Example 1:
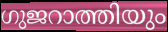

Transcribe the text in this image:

ഗുജറാത്തിയും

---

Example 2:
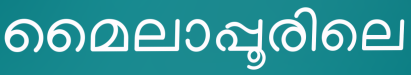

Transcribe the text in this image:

മൈലാപ്പൂരിലെ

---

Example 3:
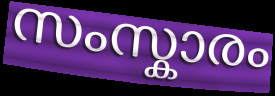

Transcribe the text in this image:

സംസ്കാരം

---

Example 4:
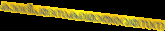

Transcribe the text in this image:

കാലദീപദേസകുലമാതരവസേന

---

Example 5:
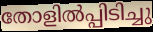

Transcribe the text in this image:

തോളിൽപ്പിടിച്ചു